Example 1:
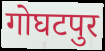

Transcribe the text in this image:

गोघटपुर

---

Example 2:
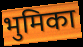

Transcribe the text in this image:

भुमिका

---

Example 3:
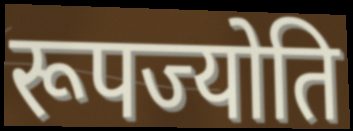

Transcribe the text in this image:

रूपज्योति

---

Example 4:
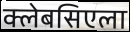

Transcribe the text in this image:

क्लेबसिएला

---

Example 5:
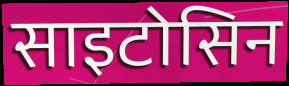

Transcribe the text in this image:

साइटोसिन